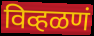
विव्हळणं